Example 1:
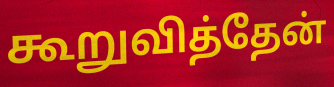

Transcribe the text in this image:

கூறுவித்தேன்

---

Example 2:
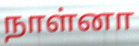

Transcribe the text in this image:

நாள்னா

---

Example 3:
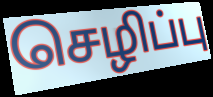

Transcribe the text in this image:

செழிப்பு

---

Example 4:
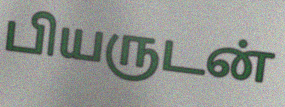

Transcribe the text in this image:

பியருடன்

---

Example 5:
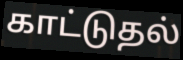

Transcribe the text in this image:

காட்டுதல்